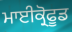
ਮਾਈਕ੍ਰੋਫੂਡ